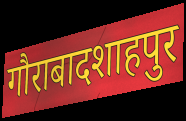
गौराबादशाहपुर